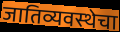
जातिव्यवस्थेचा